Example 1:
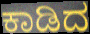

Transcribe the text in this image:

ಕಾಡಿದ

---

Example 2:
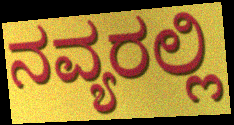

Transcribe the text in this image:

ನವ್ಯರಲ್ಲಿ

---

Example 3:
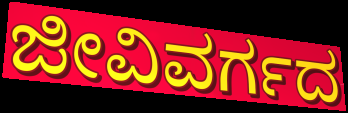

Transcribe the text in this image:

ಜೀವಿವರ್ಗದ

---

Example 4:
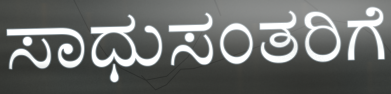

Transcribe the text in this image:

ಸಾಧುಸಂತರಿಗೆ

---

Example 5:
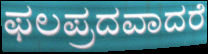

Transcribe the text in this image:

ಫಲಪ್ರದವಾದರೆ